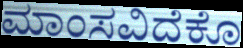
ಮಾಂಸವಿದೆಕೊ